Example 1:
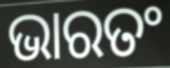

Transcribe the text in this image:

ଭାରତଂ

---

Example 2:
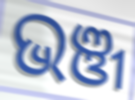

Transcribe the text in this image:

ଭଞ୍ଜ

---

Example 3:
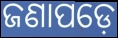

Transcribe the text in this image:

ଜଣାପଡ଼େ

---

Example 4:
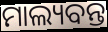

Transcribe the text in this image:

ମାଲ୍ୟବନ୍ତ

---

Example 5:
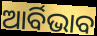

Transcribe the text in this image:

ଆର୍ବିଭାବ